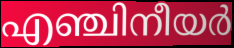
എഞ്ചിനീയർ